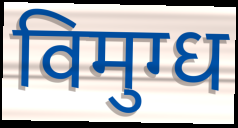
विमुग्ध